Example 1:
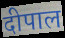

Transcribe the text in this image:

दीपाल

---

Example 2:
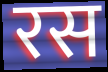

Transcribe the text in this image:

रस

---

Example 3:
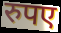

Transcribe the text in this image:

रुपए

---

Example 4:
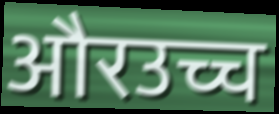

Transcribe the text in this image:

औरउच्च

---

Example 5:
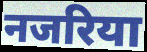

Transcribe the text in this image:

नजरिया